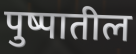
पुष्पातील